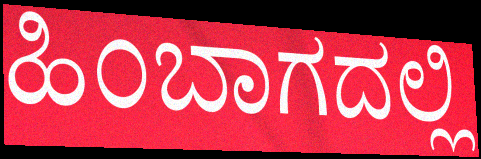
ಹಿಂಬಾಗದಲ್ಲಿ